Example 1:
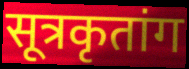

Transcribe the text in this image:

सूत्रकृतांग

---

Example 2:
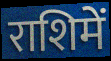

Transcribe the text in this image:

राशिमें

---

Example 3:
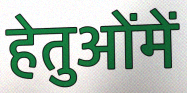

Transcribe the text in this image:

हेतुओंमें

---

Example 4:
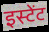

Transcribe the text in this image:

इस्टेंट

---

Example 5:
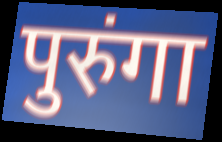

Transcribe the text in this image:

पुरुंगा